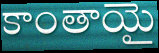
కాంతాయై